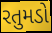
રતુમડો